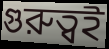
গুৰুত্বই